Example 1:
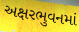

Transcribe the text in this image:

અક્ષરભુવનમાં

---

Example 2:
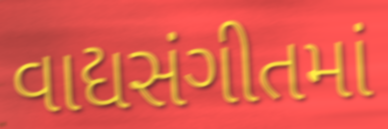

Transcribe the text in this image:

વાદ્યસંગીતમાં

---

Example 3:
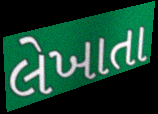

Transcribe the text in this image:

લેખાતા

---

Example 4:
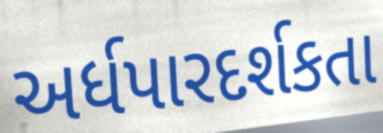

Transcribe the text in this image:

અર્ધપારદર્શકતા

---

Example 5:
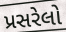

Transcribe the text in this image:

પ્રસરેલો